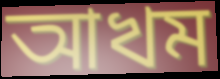
আখম